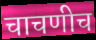
चाचणीच